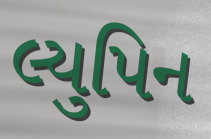
લ્યુપિન